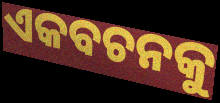
ଏକବଚନକୁ